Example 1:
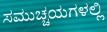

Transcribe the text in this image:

ಸಮುಚ್ಚಯಗಳಲ್ಲಿ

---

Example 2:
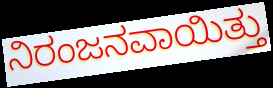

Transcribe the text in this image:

ನಿರಂಜನವಾಯಿತ್ತು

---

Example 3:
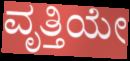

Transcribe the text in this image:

ವೃತ್ತಿಯೇ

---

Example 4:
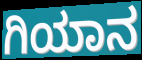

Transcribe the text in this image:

ಗಿಯಾನ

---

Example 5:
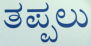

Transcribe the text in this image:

ತಪ್ಪಲು